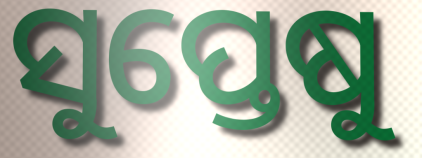
ସୁପ୍ତେଷୁ